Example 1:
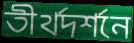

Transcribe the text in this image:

তীর্থদর্শনে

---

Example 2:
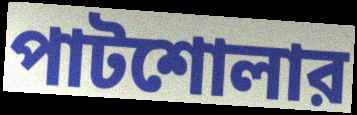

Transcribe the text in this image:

পাটশোলার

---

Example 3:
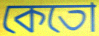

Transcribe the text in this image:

কেতো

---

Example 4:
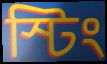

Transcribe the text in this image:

স্টিং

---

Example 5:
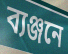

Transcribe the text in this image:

ব্যঞ্জনে